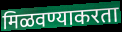
मिळवण्याकरता